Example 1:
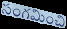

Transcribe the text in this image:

సంగమించి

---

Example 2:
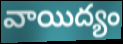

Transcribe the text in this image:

వాయిద్యం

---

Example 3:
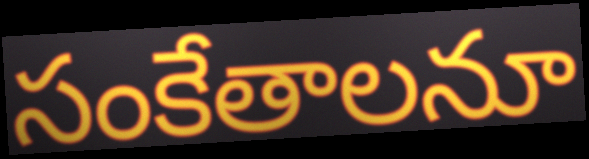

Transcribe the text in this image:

సంకేతాలనూ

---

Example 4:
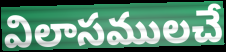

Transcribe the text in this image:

విలాసములచే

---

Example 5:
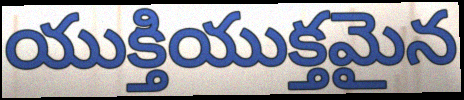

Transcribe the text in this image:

యుక్తియుక్తమైన